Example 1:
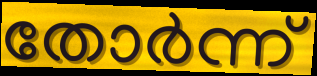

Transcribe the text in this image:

തോർന്ന്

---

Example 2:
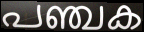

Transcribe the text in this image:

പഞ്ചക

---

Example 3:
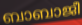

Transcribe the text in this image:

ബാബാജീ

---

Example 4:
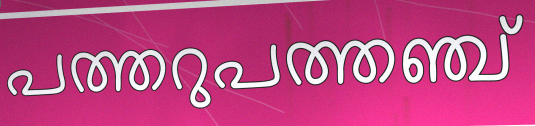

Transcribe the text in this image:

പത്തറുപത്തഞ്ച്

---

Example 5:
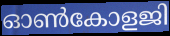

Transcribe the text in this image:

ഓൺകോളജി